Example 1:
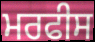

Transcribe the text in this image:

ਮਰਫੀਸ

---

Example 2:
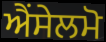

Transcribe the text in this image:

ਐਂਸੇਲਮੋ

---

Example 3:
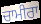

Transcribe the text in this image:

ਚਾਮੀਰਾ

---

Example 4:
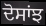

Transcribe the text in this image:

ਦੋਸਾਂਝ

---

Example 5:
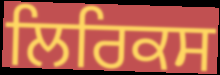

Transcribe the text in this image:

ਲਿਰਿਕਸ